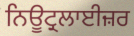
ਨਿਊਟ੍ਰਲਾਈਜ਼ਰ